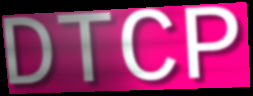
DTCP